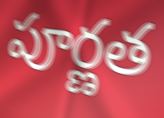
పూర్ణత